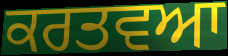
ਕਰਤਵਆ